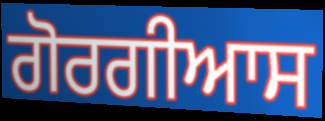
ਗੋਰਗੀਆਸ